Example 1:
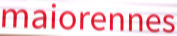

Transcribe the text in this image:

maiorennes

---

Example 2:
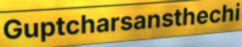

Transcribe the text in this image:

Guptcharsansthechi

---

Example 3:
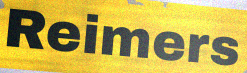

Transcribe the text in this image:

Reimers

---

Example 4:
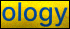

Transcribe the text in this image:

ology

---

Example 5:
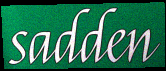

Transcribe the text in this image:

sadden